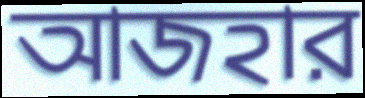
আজহার